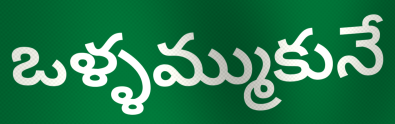
ఒళ్ళమ్ముకునే